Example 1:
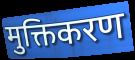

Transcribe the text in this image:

मुक्तिकरण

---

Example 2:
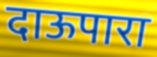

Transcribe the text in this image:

दाऊपारा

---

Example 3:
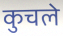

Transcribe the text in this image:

कुचले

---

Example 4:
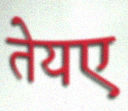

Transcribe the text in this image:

तेयए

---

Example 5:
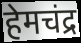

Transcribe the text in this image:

हेमचंद्र